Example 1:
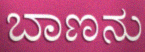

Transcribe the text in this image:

ಬಾಣನು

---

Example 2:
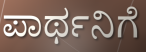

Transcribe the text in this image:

ಪಾರ್ಥನಿಗೆ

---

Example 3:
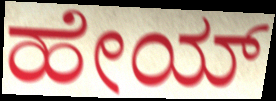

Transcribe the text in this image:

ಹೇಯ್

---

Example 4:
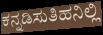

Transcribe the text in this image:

ಕನ್ನಡಿಸುತಿಹನಿಲ್ಲಿ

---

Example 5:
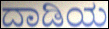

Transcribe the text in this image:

ದಾಡಿಯ